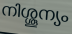
നിശ്ശൂന്യം